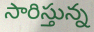
సారిస్తున్న